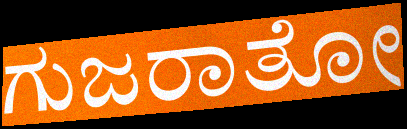
ಗುಜರಾತೋ